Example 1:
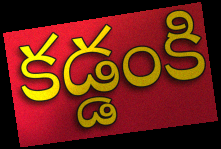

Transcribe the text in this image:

కడ్డంకి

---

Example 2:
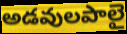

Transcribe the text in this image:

అడవులపాలై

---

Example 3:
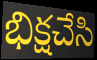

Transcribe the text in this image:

భిక్షచేసి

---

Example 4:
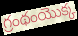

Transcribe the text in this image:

గ్రంథంయొక్క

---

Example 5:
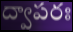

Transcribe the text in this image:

ద్వాపరః